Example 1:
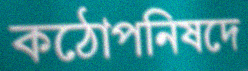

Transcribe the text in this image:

কঠোপনিষদে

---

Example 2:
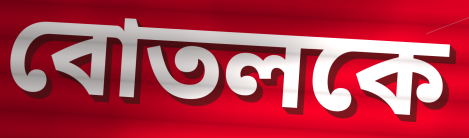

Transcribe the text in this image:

বোতলকে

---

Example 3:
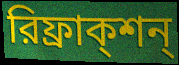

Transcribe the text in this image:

রিফ্রাক্শন্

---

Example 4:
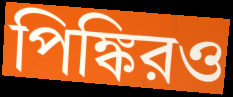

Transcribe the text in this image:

পিঙ্কিরও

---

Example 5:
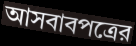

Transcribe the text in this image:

আসবাবপত্রের